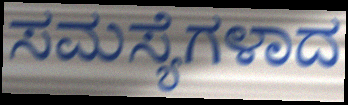
ಸಮಸ್ಯೆಗಳಾದ